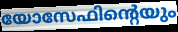
യോസേഫിന്റെയും